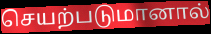
செயற்படுமானால்